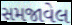
સમજાવેલ